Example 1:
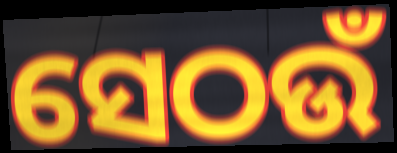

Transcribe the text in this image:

ସେଠଉଁ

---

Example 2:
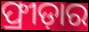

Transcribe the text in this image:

ଫ୍ରୀଡ଼ାର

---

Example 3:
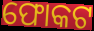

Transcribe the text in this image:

ଫୋକଟ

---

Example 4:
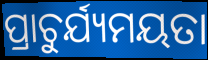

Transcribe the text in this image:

ପ୍ରାଚୁର୍ଯ୍ୟମୟତା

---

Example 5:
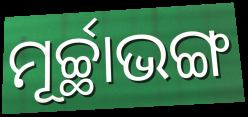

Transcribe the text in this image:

ମୂର୍ଚ୍ଛାଭଙ୍ଗ